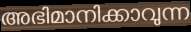
അഭിമാനിക്കാവുന്ന